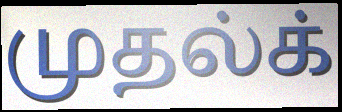
முதல்க்